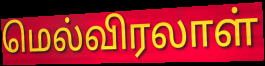
மெல்விரலாள்